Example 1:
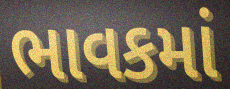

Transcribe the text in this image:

ભાવકમાં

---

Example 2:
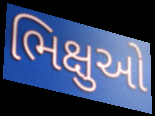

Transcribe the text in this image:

ભિક્ષુઓ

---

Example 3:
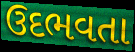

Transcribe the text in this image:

ઉદભવતા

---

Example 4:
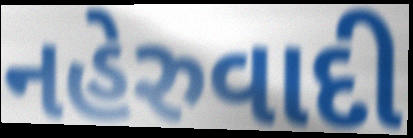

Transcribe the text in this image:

નહેરુવાદી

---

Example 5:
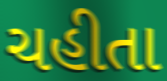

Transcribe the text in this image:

ચહીતા